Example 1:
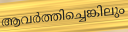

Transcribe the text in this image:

ആവർത്തിച്ചെങ്കിലും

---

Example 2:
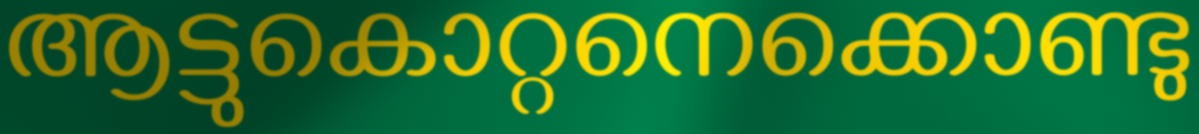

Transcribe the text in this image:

ആട്ടുകൊറ്റനെക്കൊണ്ടു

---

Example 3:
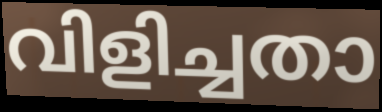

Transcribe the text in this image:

വിളിച്ചതാ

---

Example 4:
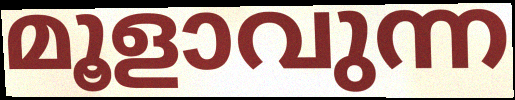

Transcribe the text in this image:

മൂളാവുന്ന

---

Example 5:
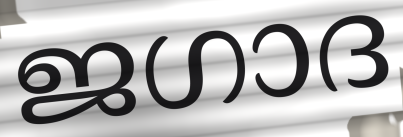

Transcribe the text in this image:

ജഗാദ